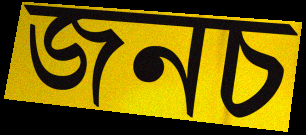
জনচ